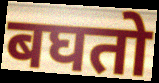
बघतो